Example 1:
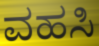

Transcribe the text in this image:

ವಹಸಿ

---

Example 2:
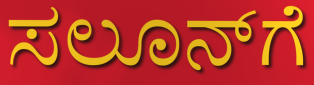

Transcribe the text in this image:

ಸಲೂನ್‍ಗೆ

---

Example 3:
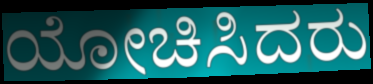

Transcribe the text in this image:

ಯೋಚಿಸಿದರು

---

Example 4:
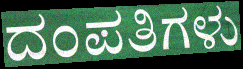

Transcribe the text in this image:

ದಂಪತಿಗಳು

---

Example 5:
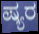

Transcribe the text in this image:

ಷ್ಯರ